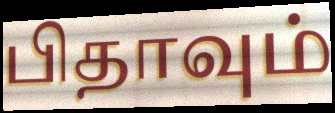
பிதாவும்